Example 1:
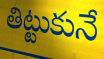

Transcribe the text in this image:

తిట్టుకునే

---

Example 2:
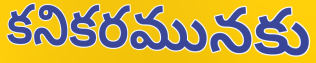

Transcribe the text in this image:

కనికరమునకు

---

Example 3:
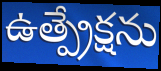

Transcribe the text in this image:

ఉత్ప్రేక్షను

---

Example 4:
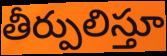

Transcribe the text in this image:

తీర్పులిస్తూ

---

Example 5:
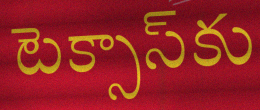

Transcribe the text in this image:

టెక్సాస్‌కు